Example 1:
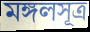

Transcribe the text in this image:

মঙ্গলসূত্র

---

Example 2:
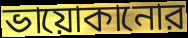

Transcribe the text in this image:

ভায়োকানোর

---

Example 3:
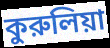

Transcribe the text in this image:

কুরুলিয়া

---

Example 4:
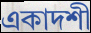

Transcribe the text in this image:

একাদশী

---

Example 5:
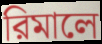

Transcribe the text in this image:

রিমালে